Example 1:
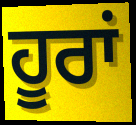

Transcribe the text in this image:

ਹੂਰਾਂ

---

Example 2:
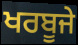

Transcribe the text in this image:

ਖਰਬੂਜੇ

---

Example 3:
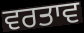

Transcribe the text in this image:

ਵਰਤਾਵ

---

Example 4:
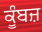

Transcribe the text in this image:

ਕੂੰਬਜ਼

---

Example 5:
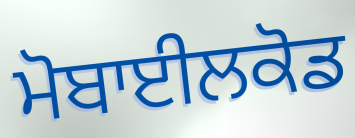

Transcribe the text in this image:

ਮੋਬਾਈਲਕੋਡ